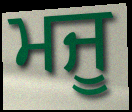
ਮਜੂ